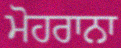
ਮੋਹਰਾਨਾ